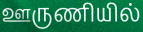
ஊருணியில்